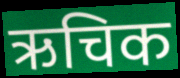
ऋचिक